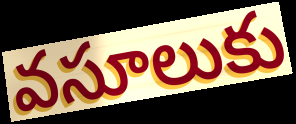
వసూలుకు